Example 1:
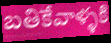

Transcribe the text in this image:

బతికేవాళ్ళకి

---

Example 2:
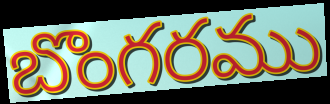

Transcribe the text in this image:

బొంగరము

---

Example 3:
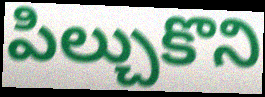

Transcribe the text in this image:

పిల్చుకొని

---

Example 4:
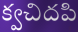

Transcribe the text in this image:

క్వచిదపి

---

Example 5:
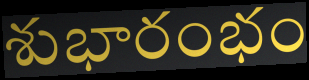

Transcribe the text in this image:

శుభారంభం